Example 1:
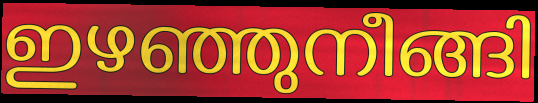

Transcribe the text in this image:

ഇഴഞ്ഞുനീങ്ങി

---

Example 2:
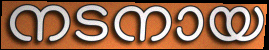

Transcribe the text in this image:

നടനായ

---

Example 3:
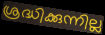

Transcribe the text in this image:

ശ്രദ്ധിക്കുന്നില്ല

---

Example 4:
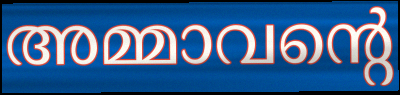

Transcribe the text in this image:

അമ്മാവന്റെ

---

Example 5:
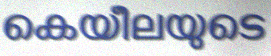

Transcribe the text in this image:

കെയീലയുടെ